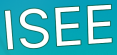
ISEE